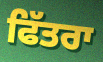
ਫਿੱਤਰਾ